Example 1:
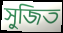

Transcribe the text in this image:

সুজিত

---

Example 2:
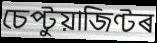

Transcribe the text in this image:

চেপ্টুয়াজিণ্টৰ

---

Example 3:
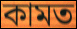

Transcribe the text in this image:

কামত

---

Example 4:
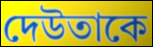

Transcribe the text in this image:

দেউতাকে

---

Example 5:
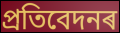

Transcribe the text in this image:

প্ৰতিবেদনৰ